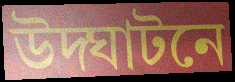
উদ্ঘাটনে